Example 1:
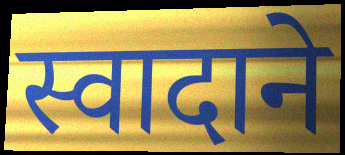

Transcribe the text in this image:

स्वादाने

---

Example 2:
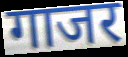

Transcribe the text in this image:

गाजर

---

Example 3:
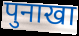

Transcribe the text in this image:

पुनाखा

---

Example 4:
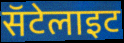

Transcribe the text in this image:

सॅटेलाइट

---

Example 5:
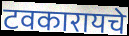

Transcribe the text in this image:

टवकारायचे